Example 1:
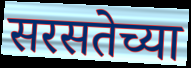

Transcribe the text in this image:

सरसतेच्या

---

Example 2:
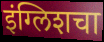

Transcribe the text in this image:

इंग्लिशचा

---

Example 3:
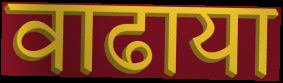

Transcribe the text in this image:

वाढाया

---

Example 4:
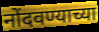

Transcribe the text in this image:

नोंदवण्याच्या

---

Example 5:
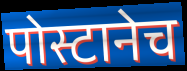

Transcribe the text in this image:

पोस्टानेच